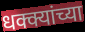
धक्क्यांच्या